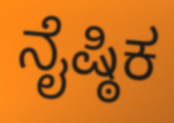
ನೈಷ್ಠಿಕ